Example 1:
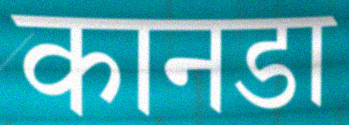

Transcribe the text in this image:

कानडा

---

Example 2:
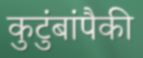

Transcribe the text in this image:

कुटुंबांपैकी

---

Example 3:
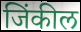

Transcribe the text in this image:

जिंकील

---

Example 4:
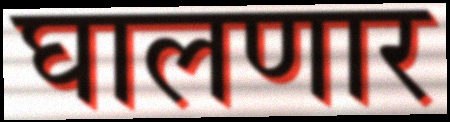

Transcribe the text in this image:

घालणार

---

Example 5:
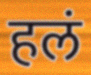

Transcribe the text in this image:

हलं